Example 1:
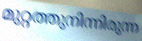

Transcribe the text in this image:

മുറ്റത്തുനിന്നിരുന്ന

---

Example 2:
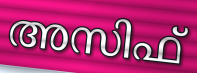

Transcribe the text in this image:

അസിഫ്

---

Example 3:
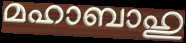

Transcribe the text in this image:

മഹാബാഹു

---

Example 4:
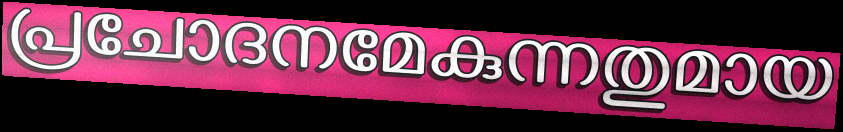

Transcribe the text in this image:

പ്രചോദനമേകുന്നതുമായ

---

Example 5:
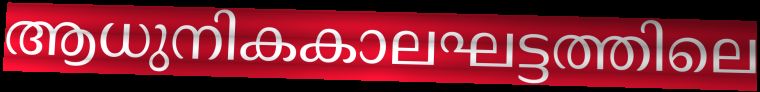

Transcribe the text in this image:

ആധുനികകാലഘട്ടത്തിലെ